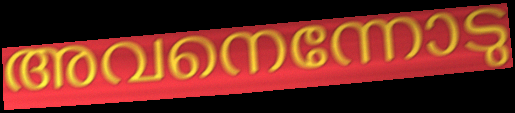
അവനെന്നോടു